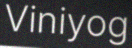
Viniyog